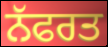
ਨੱਫਰਤ